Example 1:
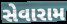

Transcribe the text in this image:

સેવારામ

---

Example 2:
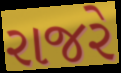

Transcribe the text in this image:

રાજરે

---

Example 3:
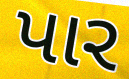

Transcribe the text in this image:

પાર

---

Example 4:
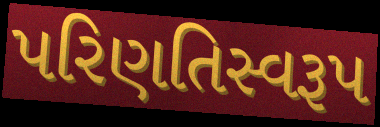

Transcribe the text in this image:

પરિણતિસ્વરૂપ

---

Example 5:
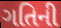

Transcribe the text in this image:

ગતિની